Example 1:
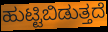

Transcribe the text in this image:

ಹುಟ್ಟಿಬಿಡುತ್ತದೆ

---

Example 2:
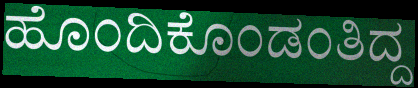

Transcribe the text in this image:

ಹೊಂದಿಕೊಂಡಂತಿದ್ದ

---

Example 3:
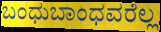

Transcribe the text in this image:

ಬಂಧುಬಾಂಧವರೆಲ್ಲ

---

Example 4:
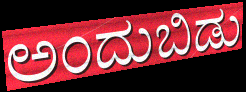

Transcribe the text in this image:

ಅಂದುಬಿಡು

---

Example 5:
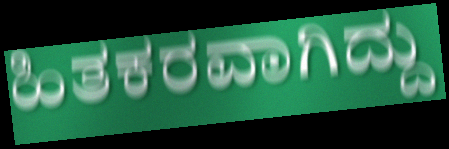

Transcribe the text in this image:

ಹಿತಕರವಾಗಿದ್ದು